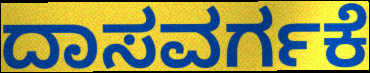
ದಾಸವರ್ಗಕೆ